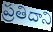
ప్రతిదాని